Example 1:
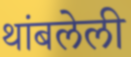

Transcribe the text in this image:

थांबलेली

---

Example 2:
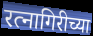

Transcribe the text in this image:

रत्नागिरीच्या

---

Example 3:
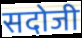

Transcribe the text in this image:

सदोजी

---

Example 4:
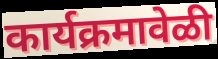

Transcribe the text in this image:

कार्यक्रमावेळी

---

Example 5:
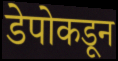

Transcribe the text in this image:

डेपोकडून